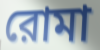
রোমা